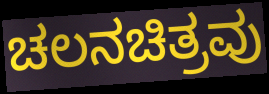
ಚಲನಚಿತ್ರವು